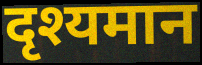
दृश्यमान